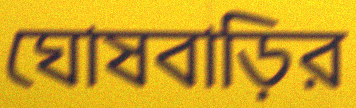
ঘোষবাড়ির